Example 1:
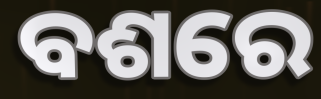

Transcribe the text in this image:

ବଶରେ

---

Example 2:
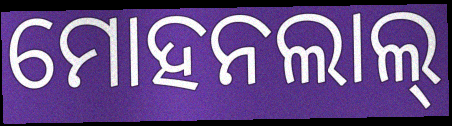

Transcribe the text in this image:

ମୋହନଲାଲ୍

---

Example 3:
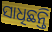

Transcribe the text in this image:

ସାଧିଛନ୍ତି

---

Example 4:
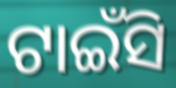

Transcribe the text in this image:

ଟାଇଁସି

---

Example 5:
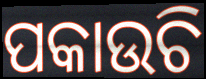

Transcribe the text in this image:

ପକାଉଚି